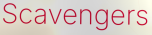
Scavengers